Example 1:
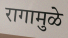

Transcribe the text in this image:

रागामुळे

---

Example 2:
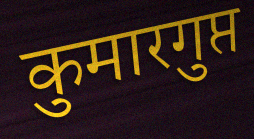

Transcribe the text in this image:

कुमारगुप्त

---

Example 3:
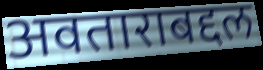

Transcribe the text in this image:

अवताराबद्दल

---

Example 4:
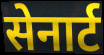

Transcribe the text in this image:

सेनार्ट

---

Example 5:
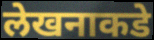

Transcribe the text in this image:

लेखनाकडे